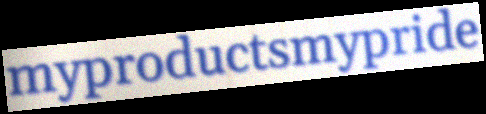
myproductsmypride